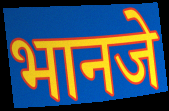
भानजे